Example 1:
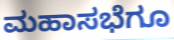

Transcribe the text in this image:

ಮಹಾಸಭೆಗೂ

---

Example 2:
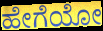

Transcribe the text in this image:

ಹೇಗೆಯೋ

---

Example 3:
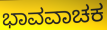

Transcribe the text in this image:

ಭಾವವಾಚಕ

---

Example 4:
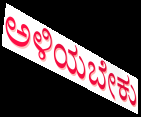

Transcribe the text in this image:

ಅಳಿಯಬೇಕು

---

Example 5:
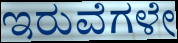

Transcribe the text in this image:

ಇರುವೆಗಳೇ